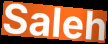
Saleh